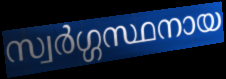
സ്വർഗ്ഗസ്ഥനായ